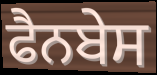
ਫੈਨਬੇਸ